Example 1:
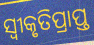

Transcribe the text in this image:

ସ୍ୱୀକୃତିପ୍ରାପ୍ତ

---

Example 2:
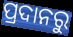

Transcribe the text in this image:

ପ୍ରଦାନରୁ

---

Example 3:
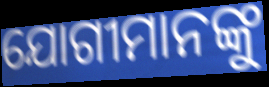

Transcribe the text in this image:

ଯୋଗୀମାନଙ୍କୁ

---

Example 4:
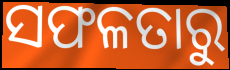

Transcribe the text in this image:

ସଫଳତାରୁ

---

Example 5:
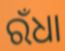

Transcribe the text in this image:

ରଁଧା